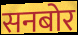
सनबोर